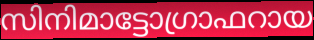
സിനിമാട്ടോഗ്രാഫറായ